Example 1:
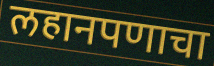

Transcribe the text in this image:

लहानपणाचा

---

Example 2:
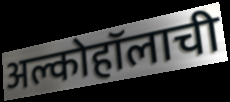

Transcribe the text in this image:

अल्कोहॉलाची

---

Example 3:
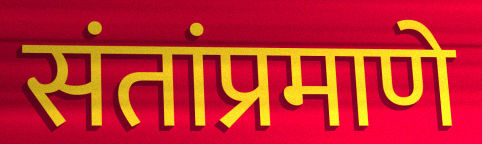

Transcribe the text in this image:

संतांप्रमाणे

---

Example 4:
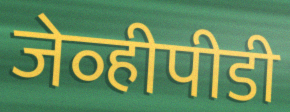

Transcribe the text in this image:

जेव्हीपीडी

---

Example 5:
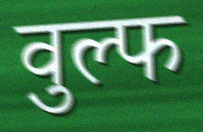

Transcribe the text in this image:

वुल्फ